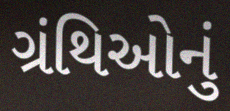
ગ્રંથિઓનું